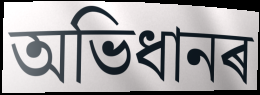
অভিধানৰ